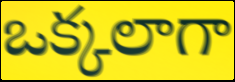
ఒక్కలాగా